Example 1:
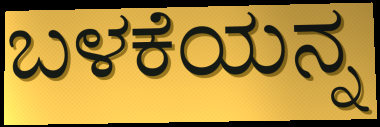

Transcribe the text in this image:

ಬಳಕೆಯನ್ನ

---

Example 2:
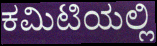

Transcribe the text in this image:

ಕಮಿಟಿಯಲ್ಲಿ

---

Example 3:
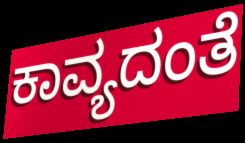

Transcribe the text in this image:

ಕಾವ್ಯದಂತೆ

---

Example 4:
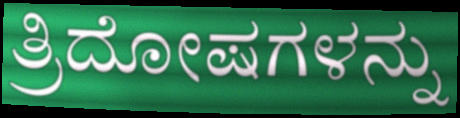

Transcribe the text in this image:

ತ್ರಿದೋಷಗಳನ್ನು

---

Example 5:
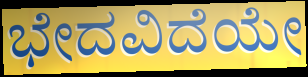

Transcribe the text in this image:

ಭೇದವಿದೆಯೇ